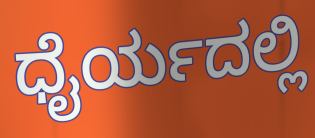
ಧೈರ್ಯದಲ್ಲಿ